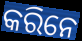
କରିନେ